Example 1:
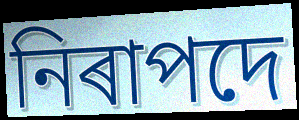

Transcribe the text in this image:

নিৰাপদে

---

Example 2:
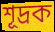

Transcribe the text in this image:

শূদ্ৰক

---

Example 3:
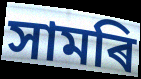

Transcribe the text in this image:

সামৰি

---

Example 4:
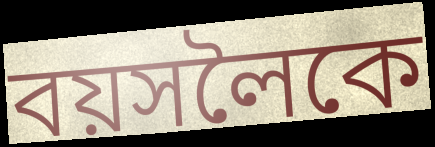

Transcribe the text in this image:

বয়সলৈকে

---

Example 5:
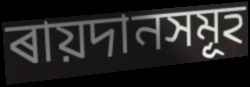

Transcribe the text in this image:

ৰায়দানসমূহ